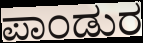
ಪಾಂಡುರ